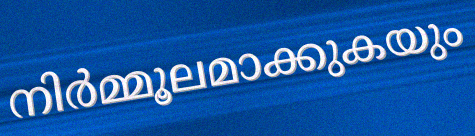
നിർമ്മൂലമാക്കുകയും